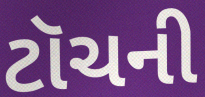
ટૉચની